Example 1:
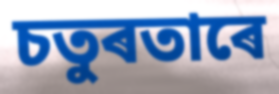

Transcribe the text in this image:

চতুৰতাৰে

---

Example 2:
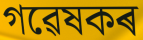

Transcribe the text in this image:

গৱেষকৰ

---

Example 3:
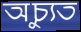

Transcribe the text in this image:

অচ্যুত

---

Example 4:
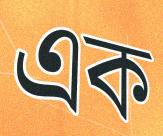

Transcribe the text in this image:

এক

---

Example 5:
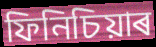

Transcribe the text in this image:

ফিনিচিয়াৰ